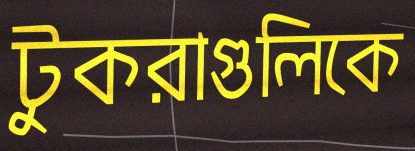
টুকরাগুলিকে